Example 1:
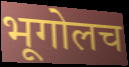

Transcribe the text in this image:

भूगोलच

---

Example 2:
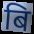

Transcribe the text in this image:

बि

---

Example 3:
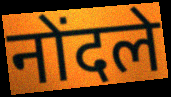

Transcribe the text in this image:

नोंदले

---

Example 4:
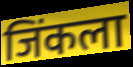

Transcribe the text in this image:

जिंकला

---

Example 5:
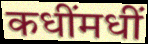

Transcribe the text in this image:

कधींमधीं